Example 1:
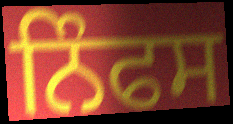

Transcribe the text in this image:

ਨਿੰਫਸ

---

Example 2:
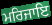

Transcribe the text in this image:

ਮਰਿਜਾਇ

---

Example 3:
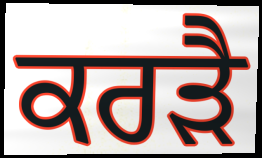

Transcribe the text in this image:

ਕਰੜੈ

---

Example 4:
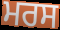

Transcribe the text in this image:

ਮਰਸ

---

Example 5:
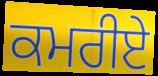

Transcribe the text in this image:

ਕਮਰੀਏ